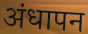
अंधापन